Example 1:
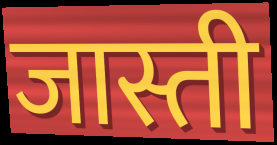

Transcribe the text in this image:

जास्ती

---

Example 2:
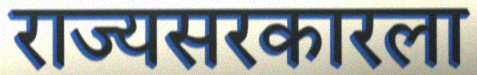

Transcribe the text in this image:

राज्यसरकारला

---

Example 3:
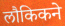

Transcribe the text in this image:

लौकिकने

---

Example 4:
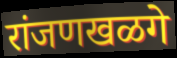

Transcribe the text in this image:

रांजणखळगे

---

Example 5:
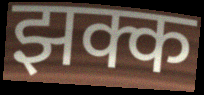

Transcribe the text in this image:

झक्क